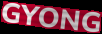
GYONG